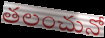
తలంచునో